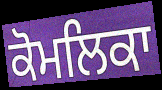
ਕੋਮਲਿਕਾ